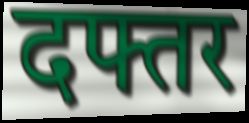
दफ्तर